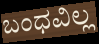
ಬಂಧವಿಲ್ಲ